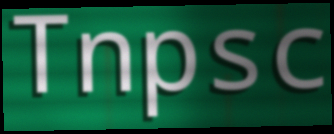
Tnpsc